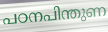
പഠനപിന്തുണ